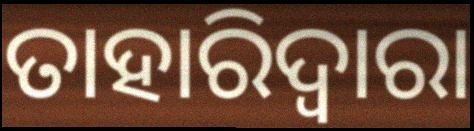
ତାହାରିଦ୍ଵାରା